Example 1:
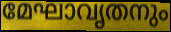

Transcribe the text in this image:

മേഘാവൃതനും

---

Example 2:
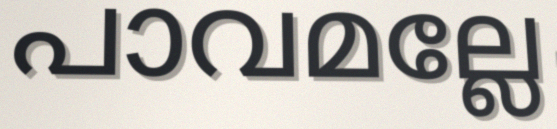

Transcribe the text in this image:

പാവമല്ലേ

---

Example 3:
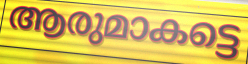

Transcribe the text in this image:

ആരുമാകട്ടെ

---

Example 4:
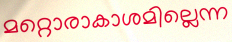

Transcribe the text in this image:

മറ്റൊരാകാശമില്ലെന്ന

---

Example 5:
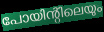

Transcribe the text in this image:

പോയിന്റിലെയും